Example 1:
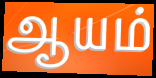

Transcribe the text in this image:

ஆயம்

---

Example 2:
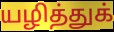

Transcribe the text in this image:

யழித்துக்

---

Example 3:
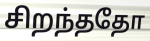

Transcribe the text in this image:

சிறந்ததோ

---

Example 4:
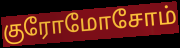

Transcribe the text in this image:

குரோமோசோம்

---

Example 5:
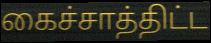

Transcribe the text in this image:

கைச்சாத்திட்ட